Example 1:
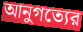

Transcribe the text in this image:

আনুগত্যের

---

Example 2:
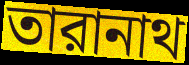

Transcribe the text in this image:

তারানাথ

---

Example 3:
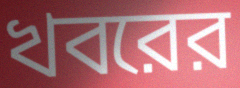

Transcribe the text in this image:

খবরের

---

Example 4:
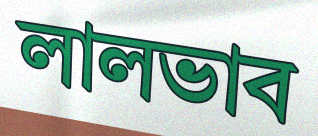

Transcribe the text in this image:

লালভাব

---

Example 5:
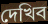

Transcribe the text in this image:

দেখিব